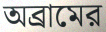
অব্রামের